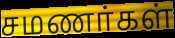
சமணர்கள்